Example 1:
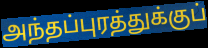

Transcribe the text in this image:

அந்தப்புரத்துக்குப்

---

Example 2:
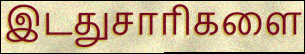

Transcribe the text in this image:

இடதுசாரிகளை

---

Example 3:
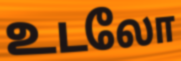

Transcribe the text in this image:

உடலோ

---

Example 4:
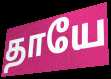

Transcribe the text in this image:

தாயே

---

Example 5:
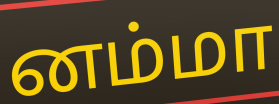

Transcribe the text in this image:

னம்மா